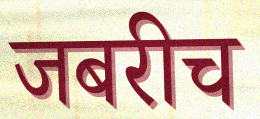
जबरीच